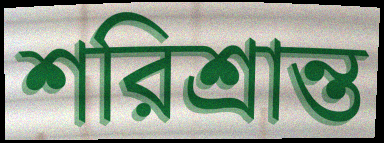
শরিশ্রান্ত